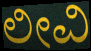
ಲೀವಿ